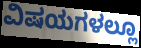
ವಿಷಯಗಳಲ್ಲೂ